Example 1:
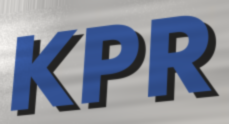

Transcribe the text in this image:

KPR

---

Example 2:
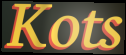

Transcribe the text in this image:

Kots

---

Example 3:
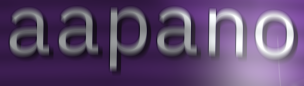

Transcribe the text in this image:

aapano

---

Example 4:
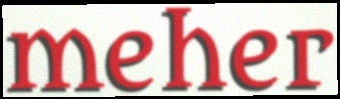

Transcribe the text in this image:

meher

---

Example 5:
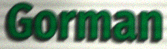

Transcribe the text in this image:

Gorman